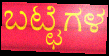
ಬಟ್ಟೆಗಳ